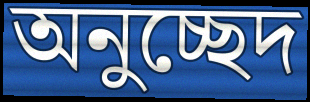
অনুচ্ছেদ